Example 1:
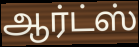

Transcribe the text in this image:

ஆர்ட்ஸ்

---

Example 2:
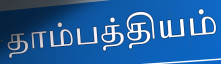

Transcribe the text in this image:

தாம்பத்தியம்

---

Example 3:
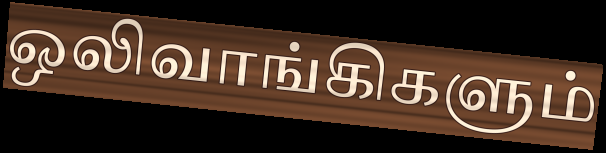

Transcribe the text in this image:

ஒலிவாங்கிகளும்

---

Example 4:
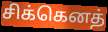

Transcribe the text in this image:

சிக்கெனத்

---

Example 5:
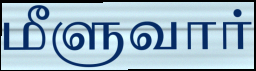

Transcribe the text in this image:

மீளுவார்